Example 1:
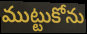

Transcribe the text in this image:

ముట్టుకోను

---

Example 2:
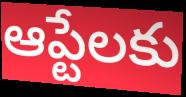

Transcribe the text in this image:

ఆప్టేలకు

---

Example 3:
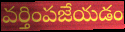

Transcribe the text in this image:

వర్తింపజేయడం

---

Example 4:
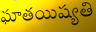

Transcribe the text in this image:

ఘాతయిష్యతి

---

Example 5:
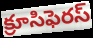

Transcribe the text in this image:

క్రూసిఫెరస్